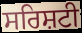
ਸਰਿਸ਼ਟੀ